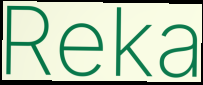
Reka